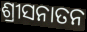
ଶ୍ରୀସନାତନ